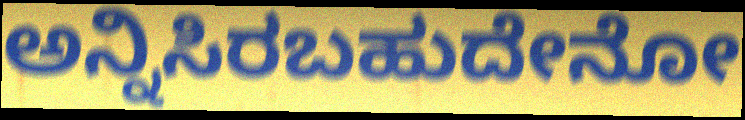
ಅನ್ನಿಸಿರಬಹುದೇನೋ